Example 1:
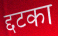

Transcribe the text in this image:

द्दटका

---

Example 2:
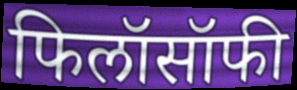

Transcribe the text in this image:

फिलॉसॉफी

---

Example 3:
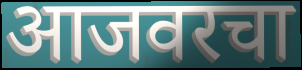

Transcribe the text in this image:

आजवरचा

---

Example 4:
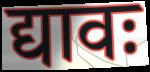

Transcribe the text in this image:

द्यावः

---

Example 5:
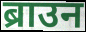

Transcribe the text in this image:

ब्राउन